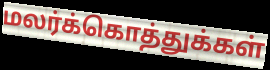
மலர்க்கொத்துக்கள்